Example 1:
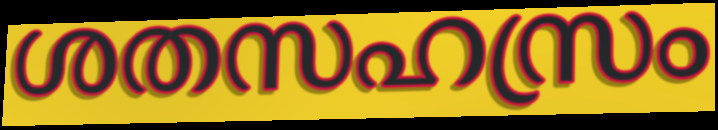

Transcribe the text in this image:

ശതസഹസ്രം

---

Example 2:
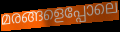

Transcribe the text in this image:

മരങ്ങളെപ്പോലെ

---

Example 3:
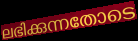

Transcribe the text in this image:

ലഭിക്കുന്നതോടെ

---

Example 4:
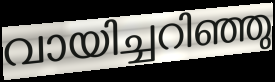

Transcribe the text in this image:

വായിച്ചറിഞ്ഞു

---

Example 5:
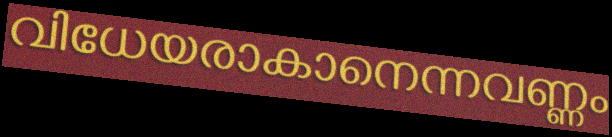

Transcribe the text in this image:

വിധേയരാകാനെന്നവണ്ണം